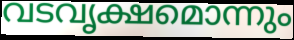
വടവൃക്ഷമൊന്നും